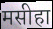
मसीहा